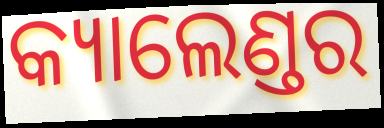
କ୍ୟାଲେଣ୍ଡର